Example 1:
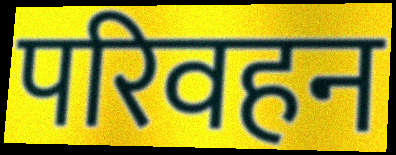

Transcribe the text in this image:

परिवहन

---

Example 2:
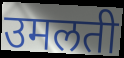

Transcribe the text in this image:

उमलती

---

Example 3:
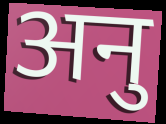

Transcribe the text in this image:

अनु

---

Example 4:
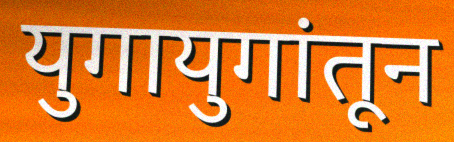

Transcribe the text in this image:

युगायुगांतून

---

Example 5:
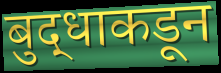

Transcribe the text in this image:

बुद्धाकडून